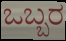
ಒಬ್ಬರ